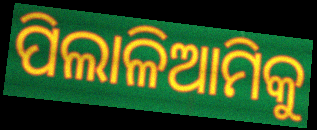
ପିଲାଳିଆମିକୁ